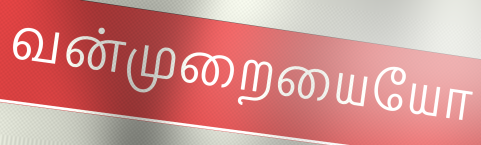
வன்முறையையோ